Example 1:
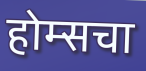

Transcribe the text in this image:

होम्सचा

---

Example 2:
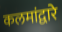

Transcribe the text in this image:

कलमांद्वारे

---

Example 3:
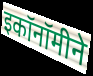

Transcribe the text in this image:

इकॉनॉमीने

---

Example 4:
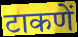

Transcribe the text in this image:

टाकणें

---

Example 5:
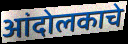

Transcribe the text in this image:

आंदोलकाचे